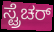
ಸ್ಟ್ರೆಚರ್